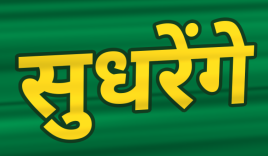
सुधरेंगे